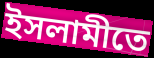
ইসলামীতে